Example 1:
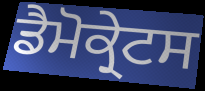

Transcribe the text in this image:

ਡੈਮੋਕ੍ਰੇਟਸ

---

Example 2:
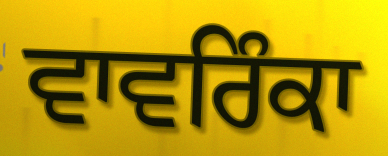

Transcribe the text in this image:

ਵਾਵਰਿੰਕਾ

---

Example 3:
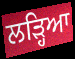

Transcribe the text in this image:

ਲੜ੍ਹਿਆ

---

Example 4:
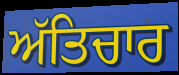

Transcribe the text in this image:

ਅੱਤਿਚਾਰ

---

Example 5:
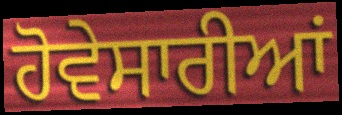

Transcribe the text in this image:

ਹੋਵੇਸਾਰੀਆਂ